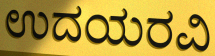
ಉದಯರವಿ